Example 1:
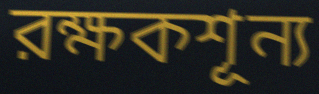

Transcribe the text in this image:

রক্ষকশূন্য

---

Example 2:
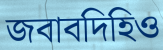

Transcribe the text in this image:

জবাবদিহিও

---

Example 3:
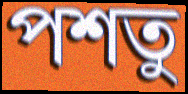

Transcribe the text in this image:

পশতু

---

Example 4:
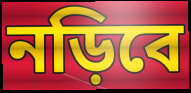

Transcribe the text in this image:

নড়িবে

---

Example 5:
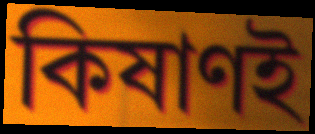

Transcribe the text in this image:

কিষাণই